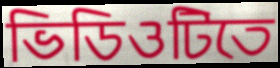
ভিডিওটিতে